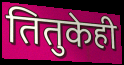
तितुकेही